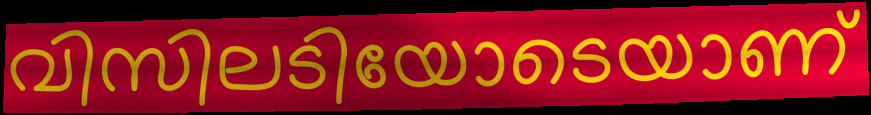
വിസിലടിയോടെയാണ്